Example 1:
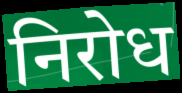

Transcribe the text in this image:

निरोध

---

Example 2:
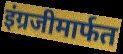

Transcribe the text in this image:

इंग्रजीमार्फत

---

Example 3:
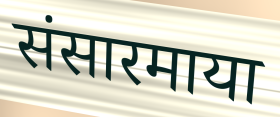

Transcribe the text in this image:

संसारमाया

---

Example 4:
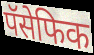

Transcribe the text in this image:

पॅसेफिक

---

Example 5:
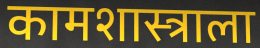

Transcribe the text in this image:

कामशास्त्राला